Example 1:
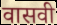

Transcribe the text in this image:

वासवी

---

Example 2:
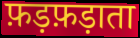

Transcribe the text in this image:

फ़ड़फ़ड़ाता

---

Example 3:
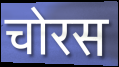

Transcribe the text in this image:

चोरस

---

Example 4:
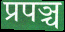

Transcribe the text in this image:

प्रपञ्च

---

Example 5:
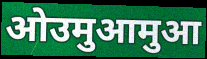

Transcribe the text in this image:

ओउमुआमुआ